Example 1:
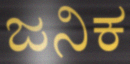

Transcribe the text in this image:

ಜನಿಕ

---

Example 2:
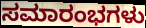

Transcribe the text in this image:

ಸಮಾರಂಭಗಳು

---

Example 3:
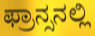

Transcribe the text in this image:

ಫ್ರಾನ್ಸನಲ್ಲಿ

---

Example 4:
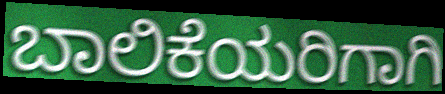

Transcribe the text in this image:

ಬಾಲಿಕೆಯರಿಗಾಗಿ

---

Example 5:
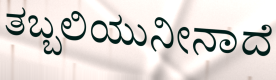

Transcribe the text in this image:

ತಬ್ಬಲಿಯುನೀನಾದೆ